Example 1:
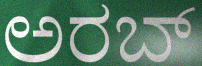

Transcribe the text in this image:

ಅರಬ್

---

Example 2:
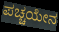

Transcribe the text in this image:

ಪಚ್ಚಯೇನ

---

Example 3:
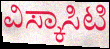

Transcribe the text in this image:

ವಿಸ್ಕಾಸಿಟಿ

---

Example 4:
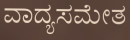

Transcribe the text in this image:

ವಾದ್ಯಸಮೇತ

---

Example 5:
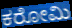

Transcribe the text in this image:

ಕರೋಮಿ